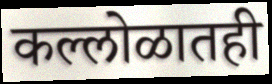
कल्लोळातही